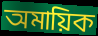
অমায়িক